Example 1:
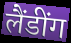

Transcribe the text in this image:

लैंडींग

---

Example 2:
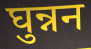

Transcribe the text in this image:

घुन्नन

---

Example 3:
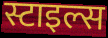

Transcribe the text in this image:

स्टाइल्स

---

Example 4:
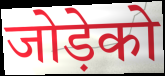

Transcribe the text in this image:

जोड़ेको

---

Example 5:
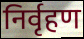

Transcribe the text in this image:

निर्वृहण